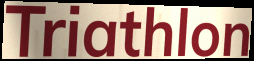
Triathlon